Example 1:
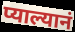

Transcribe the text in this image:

प्याल्यानं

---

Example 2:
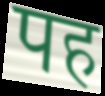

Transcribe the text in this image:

पह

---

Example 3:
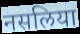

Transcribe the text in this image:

नसलिया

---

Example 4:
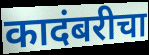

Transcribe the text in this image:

कादंबरीचा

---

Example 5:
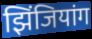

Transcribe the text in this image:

झिंजियांग